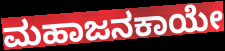
ಮಹಾಜನಕಾಯೇ